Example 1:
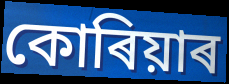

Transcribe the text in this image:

কোৰিয়াৰ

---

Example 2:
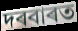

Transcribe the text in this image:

দৰবাৰত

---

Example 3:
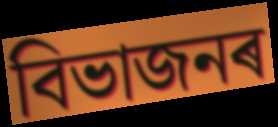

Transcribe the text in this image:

বিভাজনৰ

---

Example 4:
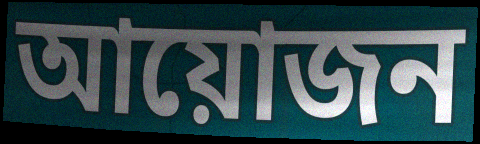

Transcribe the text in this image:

আয়োজন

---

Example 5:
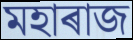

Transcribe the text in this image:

মহাৰাজ